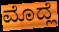
ಮೊದ್ಲೆ